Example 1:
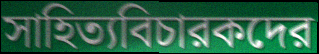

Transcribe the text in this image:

সাহিত্যবিচারকদের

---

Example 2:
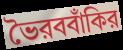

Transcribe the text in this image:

ভৈরববাঁকির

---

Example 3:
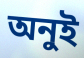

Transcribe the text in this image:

অনুই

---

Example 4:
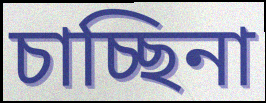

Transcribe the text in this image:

চাচ্ছিনা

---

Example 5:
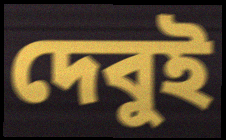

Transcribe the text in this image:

দেবুই